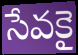
సేవకై